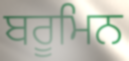
ਬਰੂਮਿਨ